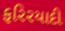
ફરિરયાદી